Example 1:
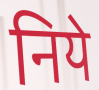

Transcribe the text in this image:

निये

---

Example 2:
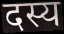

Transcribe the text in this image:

दस्य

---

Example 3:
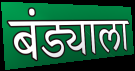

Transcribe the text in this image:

बंड्याला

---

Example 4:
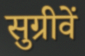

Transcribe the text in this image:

सुग्रीवें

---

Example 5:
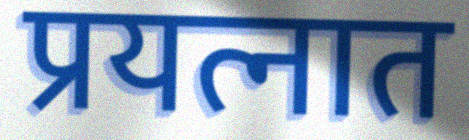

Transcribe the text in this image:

प्रयत्नात